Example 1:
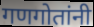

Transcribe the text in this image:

गणगोतांनी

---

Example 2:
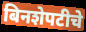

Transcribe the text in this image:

बिनशेपटीचे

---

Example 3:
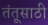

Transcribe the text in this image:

तंतूसाठी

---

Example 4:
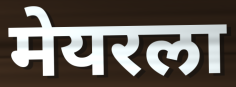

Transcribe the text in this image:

मेयरला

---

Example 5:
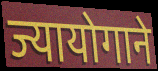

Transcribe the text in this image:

ज्यायोगाने